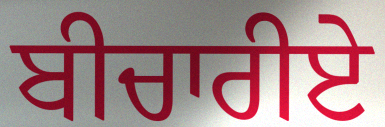
ਬੀਚਾਰੀਏ